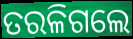
ତରଳିଗଲେ